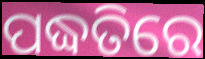
ପଦ୍ଧତିରେ